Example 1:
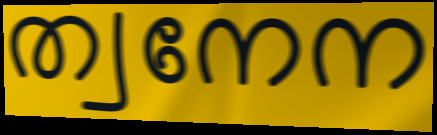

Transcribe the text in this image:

ത്വനേന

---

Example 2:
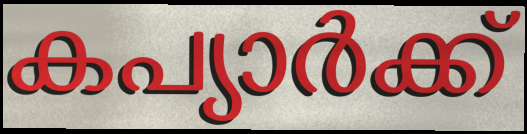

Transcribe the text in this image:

കപ്യാർക്ക്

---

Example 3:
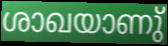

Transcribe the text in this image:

ശാഖയാണു്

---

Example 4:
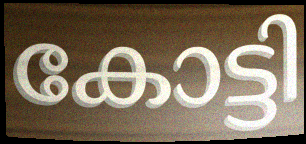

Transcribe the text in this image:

കോട്ടി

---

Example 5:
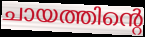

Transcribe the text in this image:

ചായത്തിന്റെ